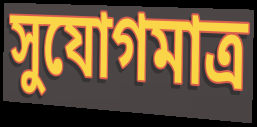
সুযোগমাত্র